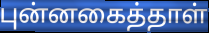
புன்னகைத்தாள்